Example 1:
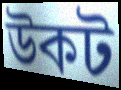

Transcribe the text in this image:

উকট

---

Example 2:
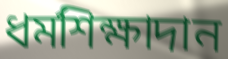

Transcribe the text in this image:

ধর্মশিক্ষাদান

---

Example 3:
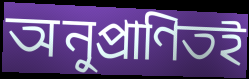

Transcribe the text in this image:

অনুপ্রাণিতই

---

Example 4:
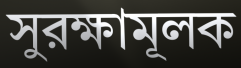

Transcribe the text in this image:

সুরক্ষামূলক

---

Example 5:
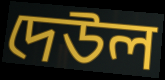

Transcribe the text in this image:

দেউল